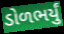
ડોળભર્યું